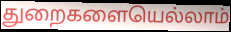
துறைகளையெல்லாம்